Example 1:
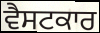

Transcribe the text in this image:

ਵੈਸਟਕਾਰ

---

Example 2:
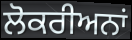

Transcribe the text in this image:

ਲੋਕਰੀਅਨਾਂ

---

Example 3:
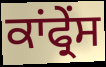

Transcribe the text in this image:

ਕਾਂਫ੍ਰੇਂਸ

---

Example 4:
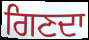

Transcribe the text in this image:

ਗਿਣਦਾ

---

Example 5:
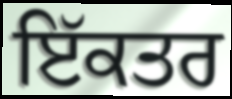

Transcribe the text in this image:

ਇੱਕਤਰ